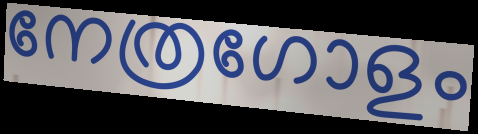
നേത്രഗോളം